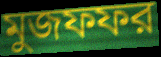
মুজফফর